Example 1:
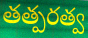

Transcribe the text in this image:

తత్పరత్వ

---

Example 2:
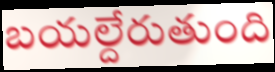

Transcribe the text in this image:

బయల్దేరుతుంది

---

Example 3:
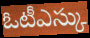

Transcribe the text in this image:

ఓటీఎస్కు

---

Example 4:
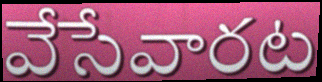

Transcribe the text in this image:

వేసేవారట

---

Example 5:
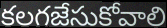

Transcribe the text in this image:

కలగజేసుకోవాలి